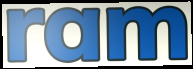
ram